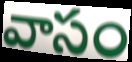
వాసం